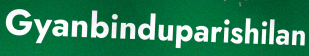
Gyanbinduparishilan